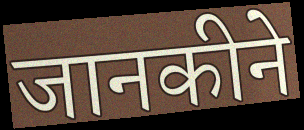
जानकीने